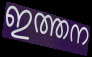
ഇത്തന